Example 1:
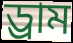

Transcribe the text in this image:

ড্ৰাম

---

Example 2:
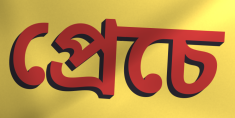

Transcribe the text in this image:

প্ৰেচে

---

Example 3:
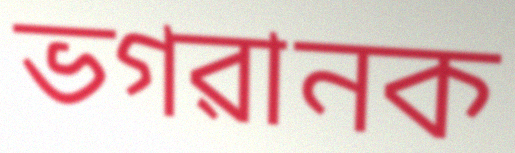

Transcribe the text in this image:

ভগৱানক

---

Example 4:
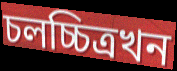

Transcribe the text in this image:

চলচ্চিত্ৰখন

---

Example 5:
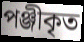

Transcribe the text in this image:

পঞ্জীকৃত